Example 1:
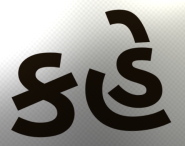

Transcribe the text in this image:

કહે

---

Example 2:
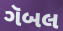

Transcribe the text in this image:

ગૅબલ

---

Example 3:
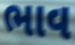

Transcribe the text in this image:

ભાવ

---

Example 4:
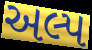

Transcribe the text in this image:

અલ્પ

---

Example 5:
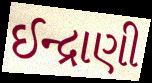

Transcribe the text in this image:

ઈન્દ્રાણી